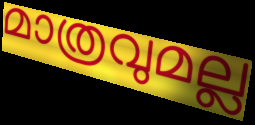
മാത്രവുമല്ല